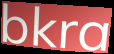
bkra